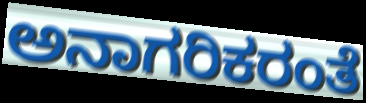
ಅನಾಗರಿಕರಂತೆ